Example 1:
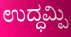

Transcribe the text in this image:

ಉದ್ಧಮ್ಪಿ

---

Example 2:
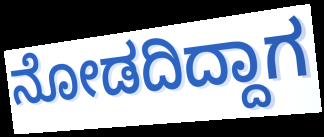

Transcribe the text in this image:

ನೋಡದಿದ್ದಾಗ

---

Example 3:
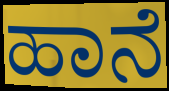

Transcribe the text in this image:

ಹಾನೆ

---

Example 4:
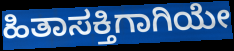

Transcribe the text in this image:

ಹಿತಾಸಕ್ತಿಗಾಗಿಯೇ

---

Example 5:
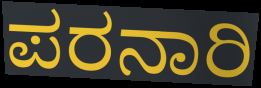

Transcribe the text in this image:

ಪರನಾರಿ